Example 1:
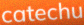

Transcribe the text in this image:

catechu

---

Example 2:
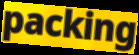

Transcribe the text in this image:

packing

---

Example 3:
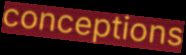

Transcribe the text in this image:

conceptions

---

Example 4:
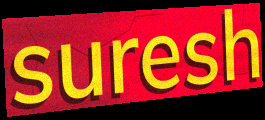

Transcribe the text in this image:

suresh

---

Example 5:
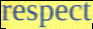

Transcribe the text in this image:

respect